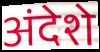
अंदेशे